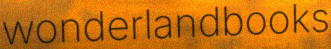
wonderlandbooks